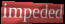
impeded